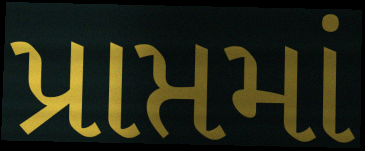
પ્રાપ્તમાં